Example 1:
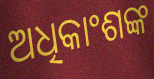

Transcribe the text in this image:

ଅଧିକାଂଶଙ୍କ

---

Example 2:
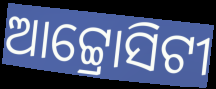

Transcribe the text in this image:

ଆଟ୍ଟ୍ରୋସିଟୀ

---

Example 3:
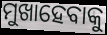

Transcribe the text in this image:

ମୁଖାହେବାକୁ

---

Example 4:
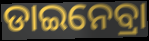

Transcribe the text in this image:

ଡାଇନେବ୍ରା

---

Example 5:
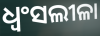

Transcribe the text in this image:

ଧ୍ବଂସଲୀଳା